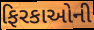
ફિરકાઓની